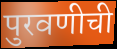
पुरवणीची